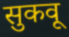
सुकवू